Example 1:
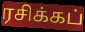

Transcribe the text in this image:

ரசிக்கப்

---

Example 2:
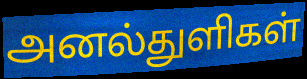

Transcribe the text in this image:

அனல்துளிகள்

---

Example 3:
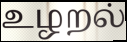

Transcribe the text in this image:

உழறல்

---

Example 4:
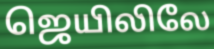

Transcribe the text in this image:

ஜெயிலிலே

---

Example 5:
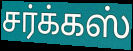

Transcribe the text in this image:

சர்க்கஸ்